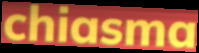
chiasma